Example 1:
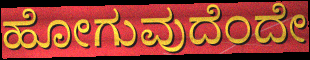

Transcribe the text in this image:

ಹೋಗುವುದೆಂದೇ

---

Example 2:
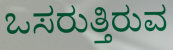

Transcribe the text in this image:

ಒಸರುತ್ತಿರುವ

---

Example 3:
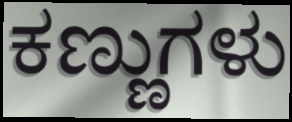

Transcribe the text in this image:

ಕಣ್ಣುಗಳು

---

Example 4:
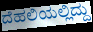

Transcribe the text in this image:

ದೆಹಲಿಯಲ್ಲಿದ್ದು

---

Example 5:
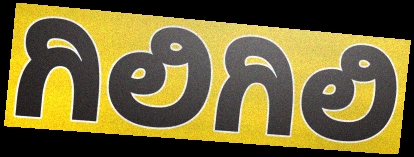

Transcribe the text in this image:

ಗಿಲಿಗಿಲಿ